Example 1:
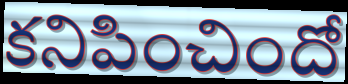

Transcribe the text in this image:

కనిపించిందో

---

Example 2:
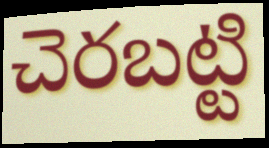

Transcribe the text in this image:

చెరబట్టి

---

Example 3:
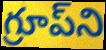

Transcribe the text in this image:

గ్రూప్‌ని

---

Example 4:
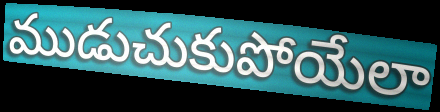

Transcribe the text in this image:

ముడుచుకుపోయేలా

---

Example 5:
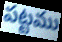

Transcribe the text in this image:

పట్టము